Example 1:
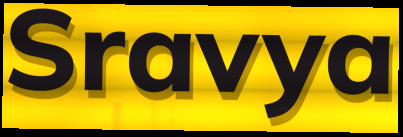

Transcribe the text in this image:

Sravya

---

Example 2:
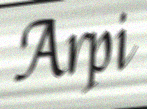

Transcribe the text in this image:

Arpi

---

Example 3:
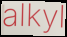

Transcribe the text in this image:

alkyl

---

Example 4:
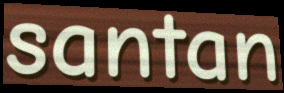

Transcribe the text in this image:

santan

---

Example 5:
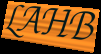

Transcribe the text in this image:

LAHB